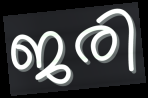
ജരി